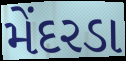
મેંદરડા